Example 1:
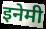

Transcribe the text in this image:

इनेमी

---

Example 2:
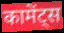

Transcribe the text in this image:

कामेंट्स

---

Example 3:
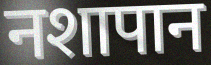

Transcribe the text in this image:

नशापान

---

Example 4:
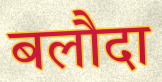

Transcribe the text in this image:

बलौदा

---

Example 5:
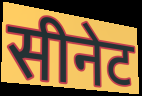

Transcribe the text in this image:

सीनेट